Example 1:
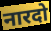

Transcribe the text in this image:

नारदो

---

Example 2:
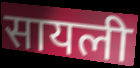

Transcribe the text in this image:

सायली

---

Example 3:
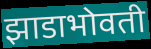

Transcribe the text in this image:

झाडाभोवती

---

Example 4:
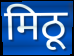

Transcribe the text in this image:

मिठू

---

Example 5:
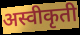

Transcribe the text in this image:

अस्वीकृती